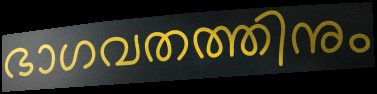
ഭാഗവതത്തിനും